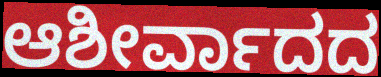
ಆಶೀರ್ವಾದದ